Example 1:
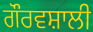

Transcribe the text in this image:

ਗੌਰਵਸ਼ਾਲੀ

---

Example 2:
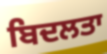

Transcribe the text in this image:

ਬਿਦਲਤਾ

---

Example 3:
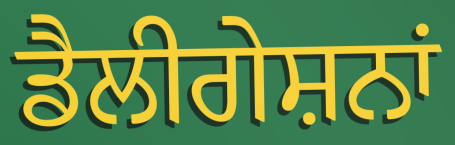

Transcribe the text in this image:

ਡੈਲੀਗੇਸ਼ਨਾਂ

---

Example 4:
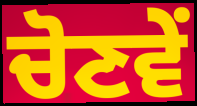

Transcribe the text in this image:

ਚੋਣਵੇਂ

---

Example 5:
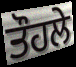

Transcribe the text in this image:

ਤੌਹਲੇ